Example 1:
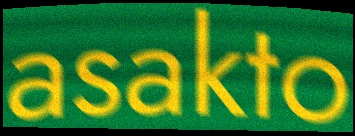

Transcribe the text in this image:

asakto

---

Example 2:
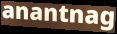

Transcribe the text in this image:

anantnag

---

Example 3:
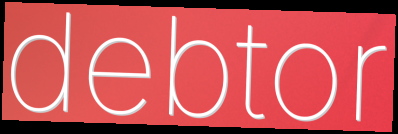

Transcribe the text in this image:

debtor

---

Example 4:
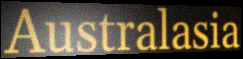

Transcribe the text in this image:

Australasia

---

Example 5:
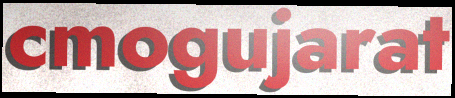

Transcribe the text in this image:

cmogujarat